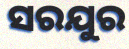
ସରଯୁର